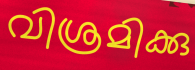
വിശ്രമിക്കു